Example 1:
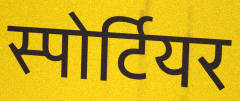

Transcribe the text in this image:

स्पोर्टियर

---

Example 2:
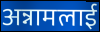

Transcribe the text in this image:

अन्नामलाई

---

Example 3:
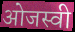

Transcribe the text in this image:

ओजस्वी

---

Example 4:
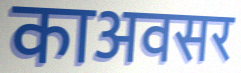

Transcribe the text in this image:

काअवसर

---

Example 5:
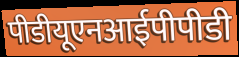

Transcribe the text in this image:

पीडीयूएनआईपीपीडी